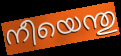
നീയെന്തു